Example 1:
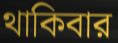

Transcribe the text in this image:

থাকিবার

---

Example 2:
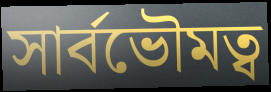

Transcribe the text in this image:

সার্বভৌমত্ব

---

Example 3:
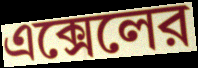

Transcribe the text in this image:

এক্সেলের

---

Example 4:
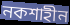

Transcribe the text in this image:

নকশাহীন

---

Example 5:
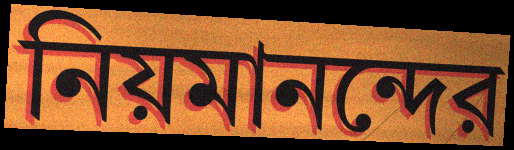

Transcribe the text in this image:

নিয়মানন্দের